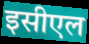
इसीएल